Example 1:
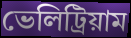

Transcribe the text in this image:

ভেলিট্রিয়াম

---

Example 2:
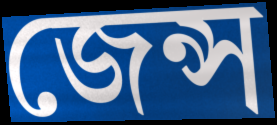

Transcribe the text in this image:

জেন্স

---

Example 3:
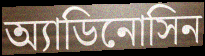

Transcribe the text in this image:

অ্যাডিনোসিন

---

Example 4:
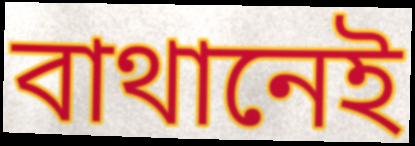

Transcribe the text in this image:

বাথানেই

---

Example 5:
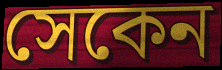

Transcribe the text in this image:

সেকেন